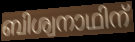
ബിശ്വനാഥിന്